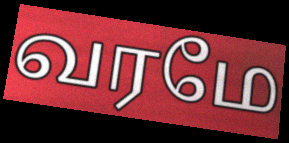
வரமே